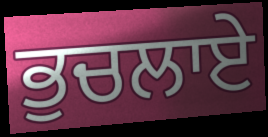
ਭੁਚਲਾਏ